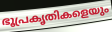
ഭൂപ്രകൃതികളെയും